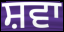
ਸ਼ਵਾ